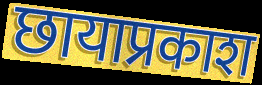
छायाप्रकाश